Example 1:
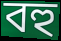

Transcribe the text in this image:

বহু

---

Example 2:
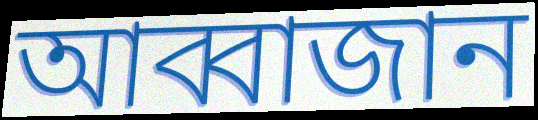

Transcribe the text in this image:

আব্বাজান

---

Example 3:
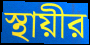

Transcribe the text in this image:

স্থায়ীর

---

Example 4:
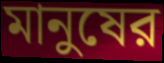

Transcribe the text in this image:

মানুষের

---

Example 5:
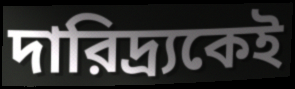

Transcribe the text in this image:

দারিদ্র্যকেই